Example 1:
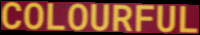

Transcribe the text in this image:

COLOURFUL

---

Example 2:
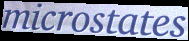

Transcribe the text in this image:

microstates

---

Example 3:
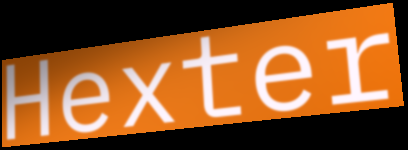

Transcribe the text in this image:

Hexter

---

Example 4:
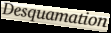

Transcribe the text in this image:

Desquamation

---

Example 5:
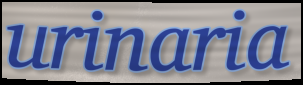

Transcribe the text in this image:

urinaria